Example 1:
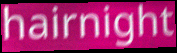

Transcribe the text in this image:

hairnight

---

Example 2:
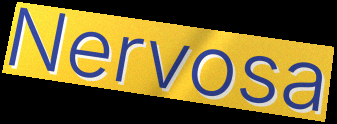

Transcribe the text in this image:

Nervosa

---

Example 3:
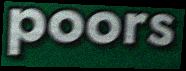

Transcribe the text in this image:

poors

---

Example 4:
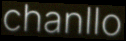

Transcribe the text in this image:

chanllo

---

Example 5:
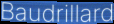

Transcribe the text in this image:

Baudrillard